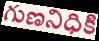
గుణనిధికి